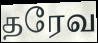
தரேவ